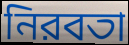
নিরবতা